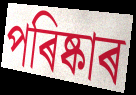
পৰিষ্কাৰ